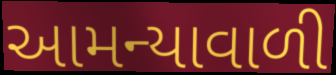
આમન્યાવાળી